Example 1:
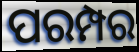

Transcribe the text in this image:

ପରମ୍ପର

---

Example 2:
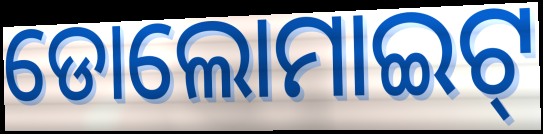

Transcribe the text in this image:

ଡୋଲୋମାଇଟ୍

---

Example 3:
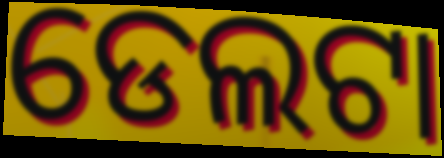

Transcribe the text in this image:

ଡେଲଟା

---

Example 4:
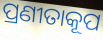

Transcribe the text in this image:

ପ୍ରଣୀତାକୂପ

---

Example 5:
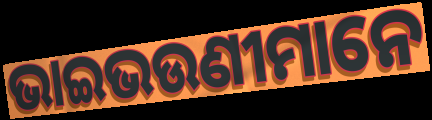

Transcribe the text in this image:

ଭାଇଭଉଣୀମାନେ